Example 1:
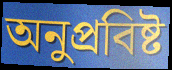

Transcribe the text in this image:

অনুপ্রবিষ্ট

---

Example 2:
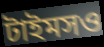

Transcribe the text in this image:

টাইমসও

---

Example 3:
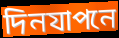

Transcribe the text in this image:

দিনযাপনে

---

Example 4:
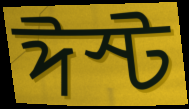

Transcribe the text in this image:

ঈস্ট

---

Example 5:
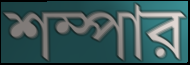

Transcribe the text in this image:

শম্পার